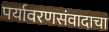
पर्यावरणसंवादाचा